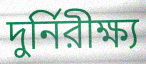
দুর্নিরীক্ষ্য